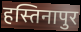
हस्तिनापुर